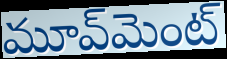
మూవ్‌మెంట్